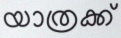
യാത്രക്ക്